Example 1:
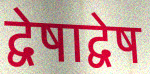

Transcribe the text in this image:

द्वेषाद्वेष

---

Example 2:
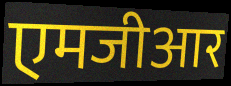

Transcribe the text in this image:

एमजीआर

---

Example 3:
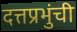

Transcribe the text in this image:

दत्तप्रभुंची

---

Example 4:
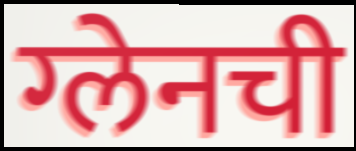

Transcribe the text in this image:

ग्लेनची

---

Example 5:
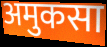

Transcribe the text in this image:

अमुकसा